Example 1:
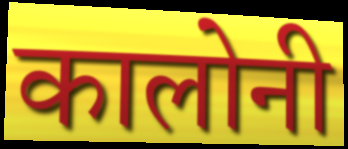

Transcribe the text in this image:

कालोनी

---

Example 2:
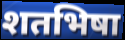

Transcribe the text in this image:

शतभिषा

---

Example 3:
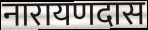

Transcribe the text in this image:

नारायणदास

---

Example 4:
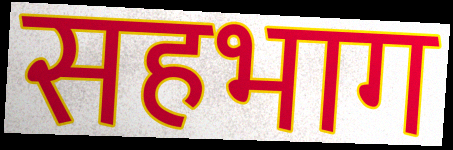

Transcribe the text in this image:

सहभाग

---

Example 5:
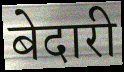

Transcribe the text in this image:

बेदारी